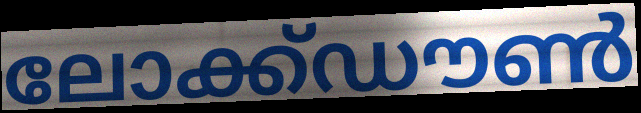
ലോക്ക്ഡൗൺ